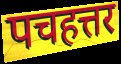
पचहत्तर